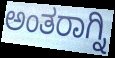
ಅಂತರಾಗ್ನಿ